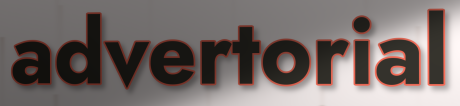
advertorial